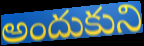
అందుకుని